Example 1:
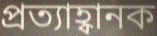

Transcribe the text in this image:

প্ৰত্যাহ্বানক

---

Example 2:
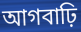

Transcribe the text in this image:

আগবাঢ়ি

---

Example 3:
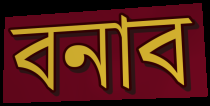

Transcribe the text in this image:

বনাব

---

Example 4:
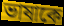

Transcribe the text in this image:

ভাষাকে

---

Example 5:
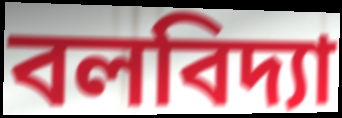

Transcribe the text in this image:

বলবিদ্যা